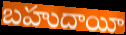
బహుదాయీ